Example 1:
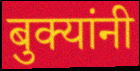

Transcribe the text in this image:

बुक्यांनी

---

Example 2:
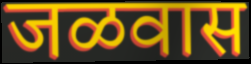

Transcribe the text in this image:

जळवास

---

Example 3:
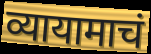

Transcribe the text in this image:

व्यायामाचं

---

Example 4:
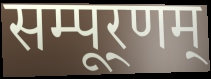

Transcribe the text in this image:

सम्पूर्णम्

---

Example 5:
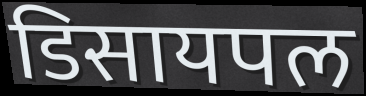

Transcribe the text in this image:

डिसायपल